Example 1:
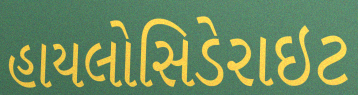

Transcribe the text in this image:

હાયલોસિડેરાઇટ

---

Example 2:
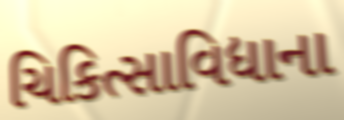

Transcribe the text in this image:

ચિકિત્સાવિદ્યાના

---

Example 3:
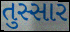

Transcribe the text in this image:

તુસ્સાર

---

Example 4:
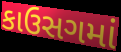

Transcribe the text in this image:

કાઉસગમાં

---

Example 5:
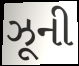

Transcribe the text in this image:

ઝૂની